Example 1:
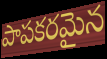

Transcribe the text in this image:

పాపకరమైన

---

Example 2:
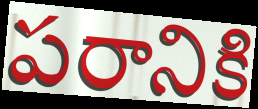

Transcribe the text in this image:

పరానికి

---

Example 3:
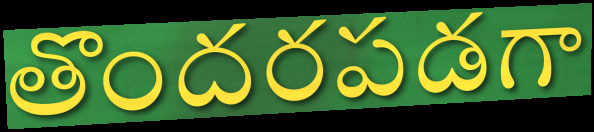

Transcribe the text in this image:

తొందరపడగా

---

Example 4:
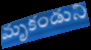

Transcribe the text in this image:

మృకండుని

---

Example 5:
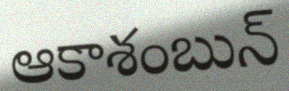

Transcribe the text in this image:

ఆకాశంబున్